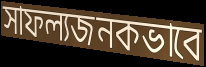
সাফল্যজনকভাবে